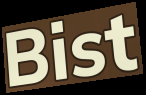
Bist